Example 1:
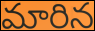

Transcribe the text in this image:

మారిన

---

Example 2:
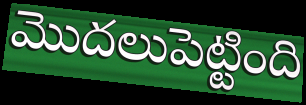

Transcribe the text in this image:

మొదలుపెట్టింది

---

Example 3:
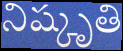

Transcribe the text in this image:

నిష్కృతి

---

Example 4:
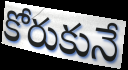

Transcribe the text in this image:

కోరుకునే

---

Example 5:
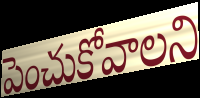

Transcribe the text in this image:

పెంచుకోవాలని